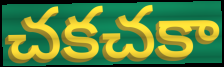
చకచకా